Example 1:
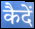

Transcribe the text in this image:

कैदें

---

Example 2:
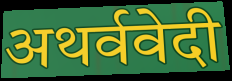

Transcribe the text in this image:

अथर्ववेदी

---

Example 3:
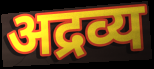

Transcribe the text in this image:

अद्रव्य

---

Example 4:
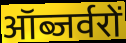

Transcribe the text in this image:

ऑब्जर्वरों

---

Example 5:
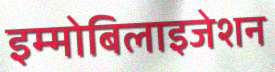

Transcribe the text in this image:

इम्मोबिलाइजेशन